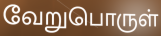
வேறுபொருள்